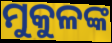
ମୁକୁଳଙ୍କ